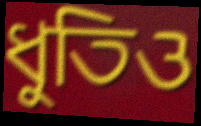
ধুতিও